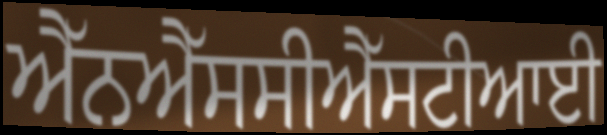
ਐੱਨਐੱਸਸੀਐੱਸਟੀਆਈ